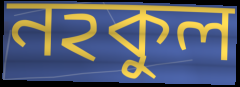
নহকুল